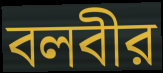
বলবীর